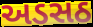
અડસઠ